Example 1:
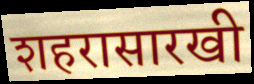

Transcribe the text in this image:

शहरासारखी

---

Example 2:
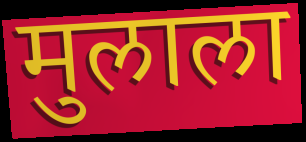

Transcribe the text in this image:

मुलाला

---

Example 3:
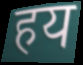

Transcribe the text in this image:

हय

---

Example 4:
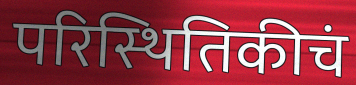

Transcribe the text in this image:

परिस्थितिकीचं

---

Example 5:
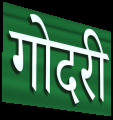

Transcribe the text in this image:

गोदरी